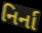
નિર્ના